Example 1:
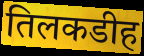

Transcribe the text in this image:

तिलकडीह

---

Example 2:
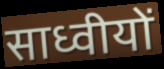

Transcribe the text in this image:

साध्वीयों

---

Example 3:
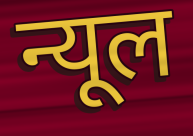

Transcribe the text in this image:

न्यूल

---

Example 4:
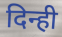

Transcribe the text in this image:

दिन्ही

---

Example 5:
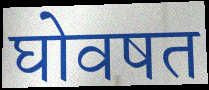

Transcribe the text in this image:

घोवषत